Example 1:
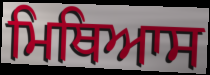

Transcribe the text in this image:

ਮਿਥਿਆਸ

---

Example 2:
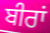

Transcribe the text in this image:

ਬੀਰਾਂ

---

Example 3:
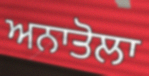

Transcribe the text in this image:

ਅਨਾਤੋਲਾ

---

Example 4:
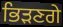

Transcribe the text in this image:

ਭਿੜਣਗੇ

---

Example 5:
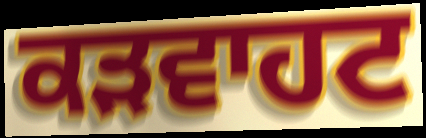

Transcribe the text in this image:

ਕੜਵਾਹਟ